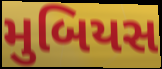
મુબિયસ